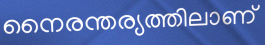
നൈരന്തര്യത്തിലാണ്